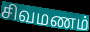
சிவமணம்